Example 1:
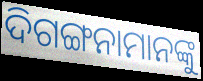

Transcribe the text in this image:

ଦିଗଙ୍ଗନାମାନଙ୍କୁ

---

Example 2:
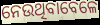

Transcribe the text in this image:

ନେଉଥିବାବେଳେ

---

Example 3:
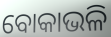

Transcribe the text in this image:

ବୋକାଭଳି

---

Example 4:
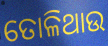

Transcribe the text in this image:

ତୋଳିଥାଉ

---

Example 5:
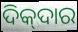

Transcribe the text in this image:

ଦିକ୍‍ଦାର